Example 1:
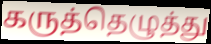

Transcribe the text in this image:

கருத்தெழுத்து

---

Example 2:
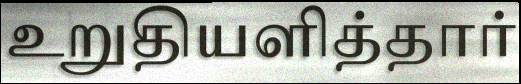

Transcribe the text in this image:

உறுதியளித்தார்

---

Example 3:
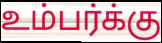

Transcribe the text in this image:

உம்பர்க்கு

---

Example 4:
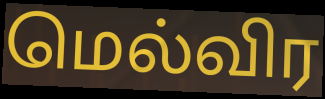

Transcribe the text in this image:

மெல்விர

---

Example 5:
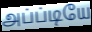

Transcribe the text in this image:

அப்ப்டியே